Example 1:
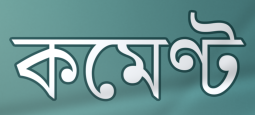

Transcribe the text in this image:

কমেণ্ট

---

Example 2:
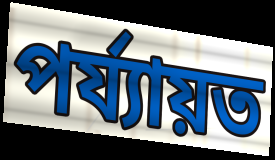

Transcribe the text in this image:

পৰ্য্যায়ত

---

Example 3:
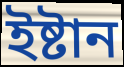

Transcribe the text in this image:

ইষ্টান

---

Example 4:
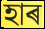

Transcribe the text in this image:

হাৰ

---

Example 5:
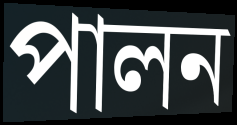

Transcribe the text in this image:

পালন